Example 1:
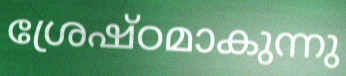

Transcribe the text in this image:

ശ്രേഷ്ഠമാകുന്നു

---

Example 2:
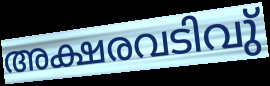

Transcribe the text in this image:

അക്ഷരവടിവു്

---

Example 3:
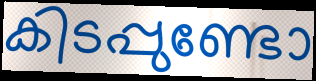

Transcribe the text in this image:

കിടപ്പുണ്ടോ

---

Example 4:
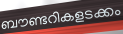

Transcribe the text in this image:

ബൗണ്ടറികളടക്കം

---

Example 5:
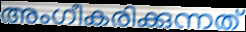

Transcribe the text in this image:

അംഗീകരിക്കുന്നത്